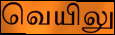
வெயிலு